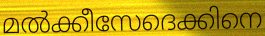
മൽക്കീസേദെക്കിനെ